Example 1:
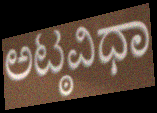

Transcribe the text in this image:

ಅಟ್ಠವಿಧಾ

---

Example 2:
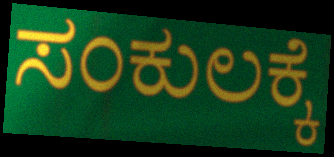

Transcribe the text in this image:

ಸಂಕುಲಕ್ಕೆ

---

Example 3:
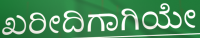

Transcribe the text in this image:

ಖರೀದಿಗಾಗಿಯೇ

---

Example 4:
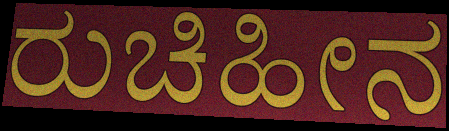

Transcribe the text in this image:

ರುಚಿಹೀನ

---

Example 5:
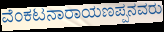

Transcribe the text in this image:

ವೆಂಕಟನಾರಾಯಣಪ್ಪನವರು